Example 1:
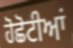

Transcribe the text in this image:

ਹੋਛੋਟੀਆਂ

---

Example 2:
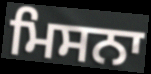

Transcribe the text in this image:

ਮਿਸਨਾ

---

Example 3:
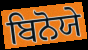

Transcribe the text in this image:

ਬਿਨੋਯੇ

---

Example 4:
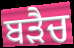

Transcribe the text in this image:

ਬੜੈਚ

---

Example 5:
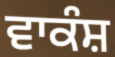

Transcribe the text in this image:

ਵਾਕੰਸ਼